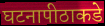
घटनापीठाकडे